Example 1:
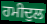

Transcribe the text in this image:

ਹਮੀਦੁਲ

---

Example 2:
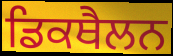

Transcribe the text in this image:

ਡਿਕਥੈਲਨ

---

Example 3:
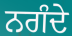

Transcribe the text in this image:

ਨਗੰਦੇ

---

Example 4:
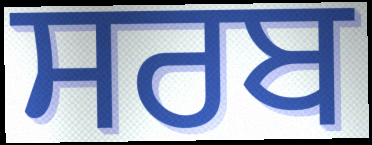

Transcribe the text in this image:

ਸਰਬ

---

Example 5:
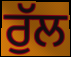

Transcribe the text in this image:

ਰੁੱਲ